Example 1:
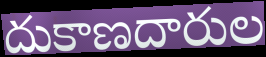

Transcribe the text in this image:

దుకాణదారుల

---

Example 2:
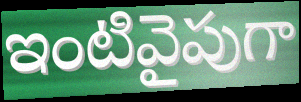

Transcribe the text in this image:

ఇంటివైపుగా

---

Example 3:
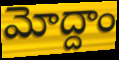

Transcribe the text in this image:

మోద్దాం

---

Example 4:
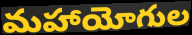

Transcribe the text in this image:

మహాయోగుల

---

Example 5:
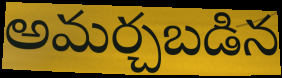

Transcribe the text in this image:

అమర్చబడిన